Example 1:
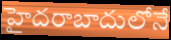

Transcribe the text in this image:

హైదరాబాదులోనే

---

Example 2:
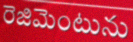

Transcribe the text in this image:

రెజిమెంటును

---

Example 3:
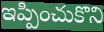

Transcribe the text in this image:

ఇప్పించుకొని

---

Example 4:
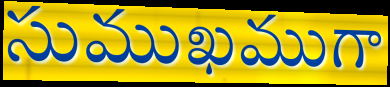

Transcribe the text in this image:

సుముఖముగా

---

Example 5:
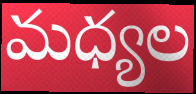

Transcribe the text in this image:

మధ్యల